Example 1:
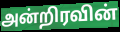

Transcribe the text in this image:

அன்றிரவின்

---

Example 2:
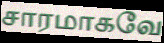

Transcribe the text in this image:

சாரமாகவே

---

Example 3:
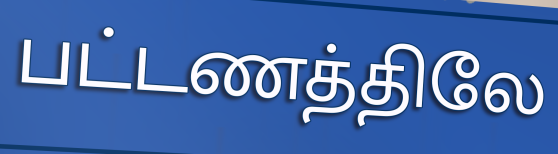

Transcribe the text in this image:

பட்டணத்திலே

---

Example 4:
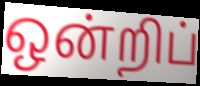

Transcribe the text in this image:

ஒன்றிப்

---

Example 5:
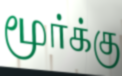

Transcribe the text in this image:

மூர்க்கு